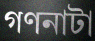
গণনাটা